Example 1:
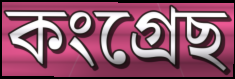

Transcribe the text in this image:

কংগ্ৰেছ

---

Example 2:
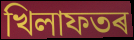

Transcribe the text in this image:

খিলাফতৰ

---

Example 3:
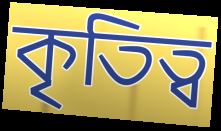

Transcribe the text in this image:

কৃতিত্ব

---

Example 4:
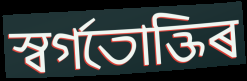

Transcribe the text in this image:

স্বৰ্গতোক্তিৰ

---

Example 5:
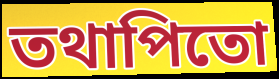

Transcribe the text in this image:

তথাপিতো